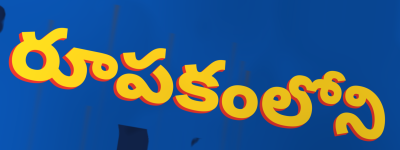
రూపకంలోని